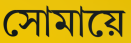
সোমায়ে